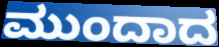
ಮುಂದಾದ